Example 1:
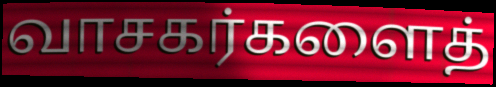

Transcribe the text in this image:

வாசகர்களைத்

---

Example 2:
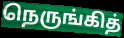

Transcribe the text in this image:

நெருங்கித்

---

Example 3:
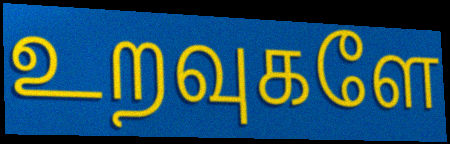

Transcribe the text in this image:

உறவுகளே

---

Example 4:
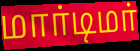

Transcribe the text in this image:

மார்டிமர்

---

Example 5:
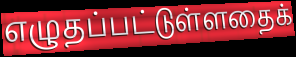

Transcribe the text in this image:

எழுதப்பட்டுள்ளதைக்